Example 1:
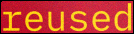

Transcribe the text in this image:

reused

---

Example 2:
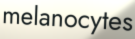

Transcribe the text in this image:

melanocytes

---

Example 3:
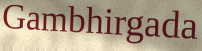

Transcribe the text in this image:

Gambhirgada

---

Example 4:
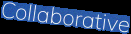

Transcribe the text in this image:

Collaborative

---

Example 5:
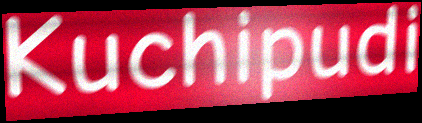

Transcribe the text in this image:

Kuchipudi